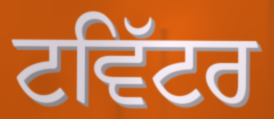
ਟਵਿੱਟਰ